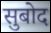
सुबोद